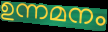
ഉന്നമനം